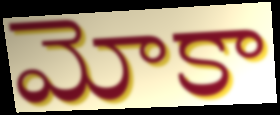
మోకా